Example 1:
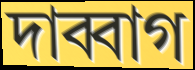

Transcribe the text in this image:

দাব্বাগ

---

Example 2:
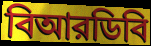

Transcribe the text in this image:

বিআরডিবি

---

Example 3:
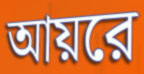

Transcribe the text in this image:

আয়রে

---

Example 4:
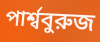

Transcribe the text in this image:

পার্শ্ববুরুজ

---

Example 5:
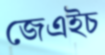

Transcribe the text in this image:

জেএইচ